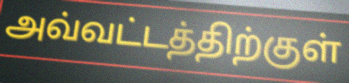
அவ்வட்டத்திற்குள்